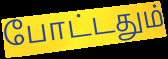
போட்டதும்